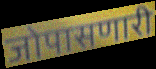
जोपासणारी